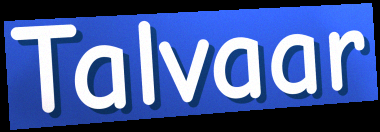
Talvaar